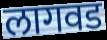
लागवड